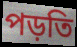
পড়তি